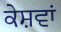
ਕੇਸ਼ਵਾਂ